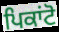
ਪਿਕਾਂਟੋ